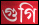
গুগি